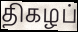
திகழப்